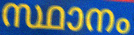
സ്ഥാനം